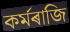
কৰ্মৰাজি